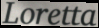
Loretta